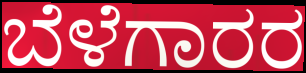
ಬೆಳೆಗಾರರ